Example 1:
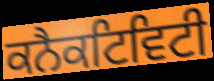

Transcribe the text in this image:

ਕਨੈਕਟਿਵਿਟੀ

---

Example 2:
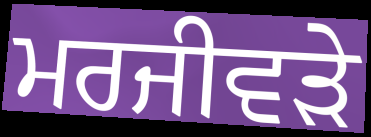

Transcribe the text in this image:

ਮਰਜੀਵੜੇ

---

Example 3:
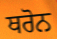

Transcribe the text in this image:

ਥਰੋਨ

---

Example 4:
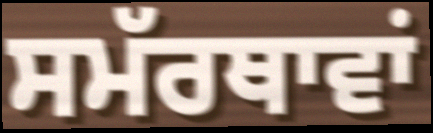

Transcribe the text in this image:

ਸਮੱਰਥਾਵਾਂ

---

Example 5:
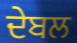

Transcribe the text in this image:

ਦੇਬਲ